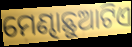
ମେଣ୍ଢାଛୁଆଟିଏ